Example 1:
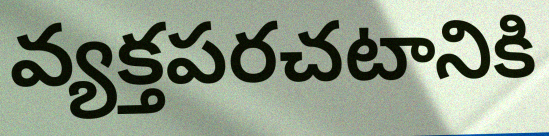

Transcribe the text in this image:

వ్యక్తపరచటానికి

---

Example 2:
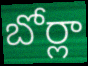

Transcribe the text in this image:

బోర్లా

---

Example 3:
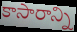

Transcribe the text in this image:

కాసారాన్ని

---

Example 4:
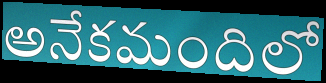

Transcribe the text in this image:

అనేకమందిలో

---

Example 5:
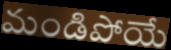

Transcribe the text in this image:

మండిపోయే